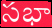
సభా